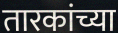
तारकांच्या